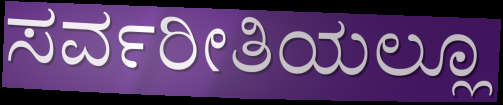
ಸರ್ವರೀತಿಯಲ್ಲೂ